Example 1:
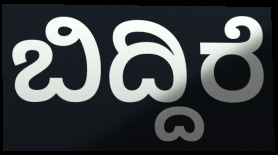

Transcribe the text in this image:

ಬಿದ್ದಿರೆ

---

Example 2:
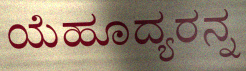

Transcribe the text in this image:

ಯೆಹೂದ್ಯರನ್ನ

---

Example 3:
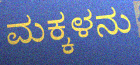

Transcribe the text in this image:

ಮಕ್ಕಳನು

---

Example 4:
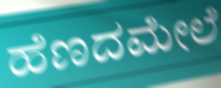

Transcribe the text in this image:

ಹೆಣದಮೇಲೆ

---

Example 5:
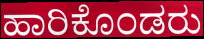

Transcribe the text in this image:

ಹಾರಿಕೊಂಡರು